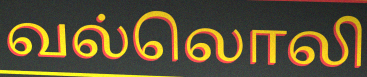
வல்லொலி